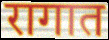
रागात